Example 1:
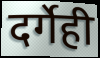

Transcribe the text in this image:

दर्गेही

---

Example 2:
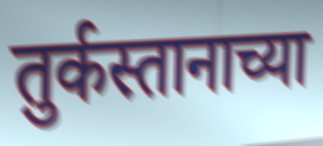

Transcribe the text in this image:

तुर्कस्तानाच्या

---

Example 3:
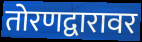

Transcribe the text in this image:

तोरणद्वारावर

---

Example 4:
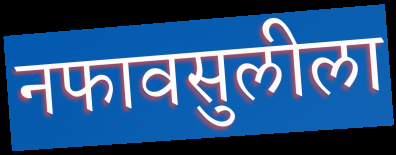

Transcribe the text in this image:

नफावसुलीला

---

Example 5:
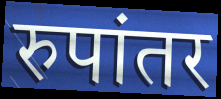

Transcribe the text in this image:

रुपांतर